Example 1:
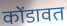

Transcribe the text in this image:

कोंडावत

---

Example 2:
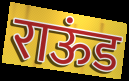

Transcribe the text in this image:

राऊंड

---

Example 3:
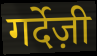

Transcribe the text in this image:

गर्देज़ी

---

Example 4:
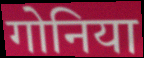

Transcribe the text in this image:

गोनिया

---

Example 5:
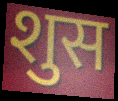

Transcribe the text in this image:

शुस